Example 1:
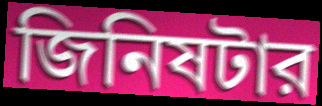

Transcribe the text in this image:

জিনিষটার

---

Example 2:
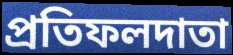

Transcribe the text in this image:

প্রতিফলদাতা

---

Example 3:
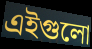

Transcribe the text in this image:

এইগুলো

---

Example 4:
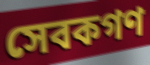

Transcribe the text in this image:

সেবকগণ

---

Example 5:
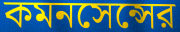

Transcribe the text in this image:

কমনসেন্সের